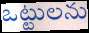
ఒట్టులను